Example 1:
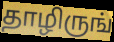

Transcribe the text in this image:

தாழிருங்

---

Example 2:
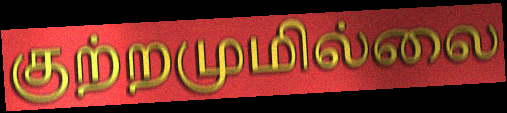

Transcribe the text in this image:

குற்றமுமில்லை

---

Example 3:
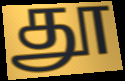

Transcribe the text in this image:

தூ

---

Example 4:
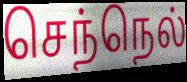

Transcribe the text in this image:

செந்நெல்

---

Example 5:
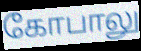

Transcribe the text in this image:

கோபாலு